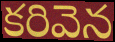
కరివెన